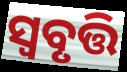
ସ୍ୱବୃତ୍ତି